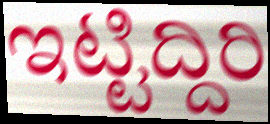
ಇಟ್ಟಿದ್ದಿರಿ